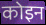
कोइन